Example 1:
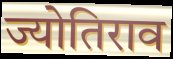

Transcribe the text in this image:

ज्योतिराव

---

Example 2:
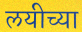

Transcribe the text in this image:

लयीच्या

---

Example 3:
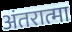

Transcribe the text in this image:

अंतरात्मा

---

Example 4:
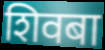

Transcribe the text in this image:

शिवबा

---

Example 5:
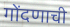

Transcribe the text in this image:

गोंदणाची